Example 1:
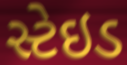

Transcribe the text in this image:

સ્ટેઇડ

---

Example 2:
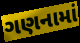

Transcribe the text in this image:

ગણનામાં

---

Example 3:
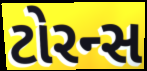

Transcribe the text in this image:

ટોરન્સ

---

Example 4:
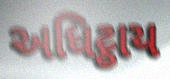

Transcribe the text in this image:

અધિટ્ઠાય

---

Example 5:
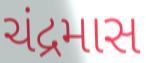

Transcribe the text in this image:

ચંદ્રમાસ